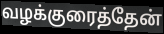
வழக்குரைத்தேன்